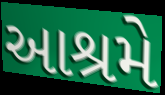
આશ્રમે